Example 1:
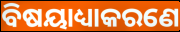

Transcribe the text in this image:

ବିଷୟାଧ୍ୟାକରଣେ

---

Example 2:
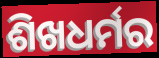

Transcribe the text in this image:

ଶିଖଧର୍ମର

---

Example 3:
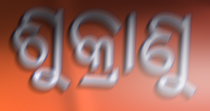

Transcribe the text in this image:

ଶୁକ୍ରାଣୁ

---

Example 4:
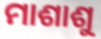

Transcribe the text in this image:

ମାଶାଶୁ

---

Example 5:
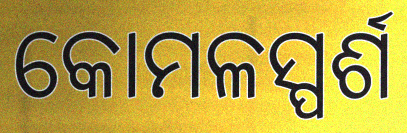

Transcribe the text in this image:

କୋମଳସ୍ପର୍ଶ